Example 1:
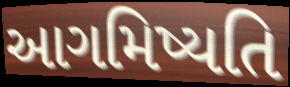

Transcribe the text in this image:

આગમિષ્યતિ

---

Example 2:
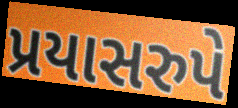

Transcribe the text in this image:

પ્રયાસરુપે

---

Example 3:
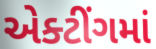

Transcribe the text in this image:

એક્ટીંગમાં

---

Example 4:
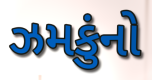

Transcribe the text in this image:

ઝમકુંનો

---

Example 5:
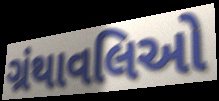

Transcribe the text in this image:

ગ્રંથાવલિઓ